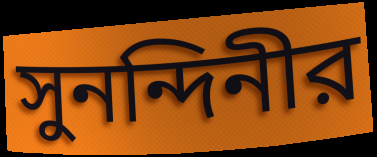
সুনন্দিনীর